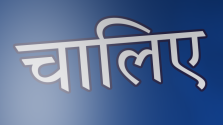
चालिए